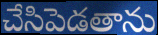
చేసిపెడతాను